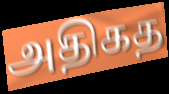
அதிகத